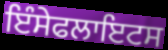
ਇੰਸੇਫਲਾਇਟਸ